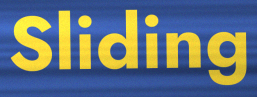
Sliding